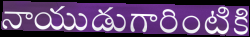
నాయుడుగారింటికి